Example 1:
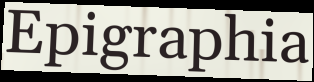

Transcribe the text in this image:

Epigraphia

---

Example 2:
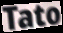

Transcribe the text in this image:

Tato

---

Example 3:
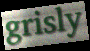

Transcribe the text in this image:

grisly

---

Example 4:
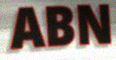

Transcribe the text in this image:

ABN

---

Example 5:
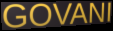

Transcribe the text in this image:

GOVANI